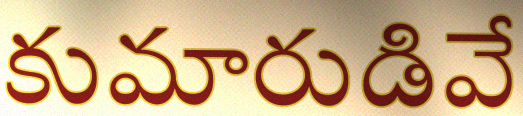
కుమారుడివే